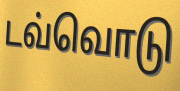
டவ்வொடு